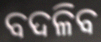
ବଦଳିବ